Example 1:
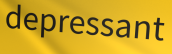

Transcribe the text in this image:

depressant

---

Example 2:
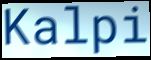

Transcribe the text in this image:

Kalpi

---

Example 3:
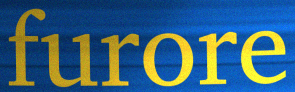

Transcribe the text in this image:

furore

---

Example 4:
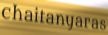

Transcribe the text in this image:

chaitanyaras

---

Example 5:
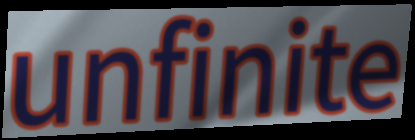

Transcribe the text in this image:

unfinite